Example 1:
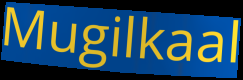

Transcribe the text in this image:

Mugilkaal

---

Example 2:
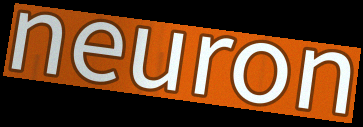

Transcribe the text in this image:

neuron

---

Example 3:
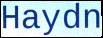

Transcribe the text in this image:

Haydn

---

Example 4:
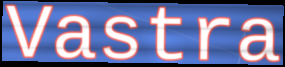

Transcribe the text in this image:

Vastra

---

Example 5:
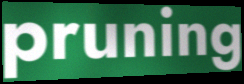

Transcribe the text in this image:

pruning